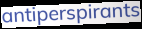
antiperspirants